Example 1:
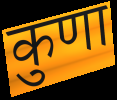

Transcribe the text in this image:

कुणा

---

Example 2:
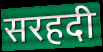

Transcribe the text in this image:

सरहदी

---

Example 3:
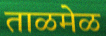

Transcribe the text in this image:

ताळमेळ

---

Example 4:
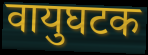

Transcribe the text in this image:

वायुघटक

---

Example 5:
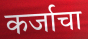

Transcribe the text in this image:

कर्जाचा